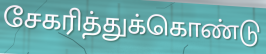
சேகரித்துக்கொண்டு